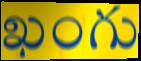
ఖంగు